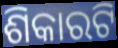
ଶିକାରଟି